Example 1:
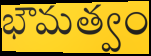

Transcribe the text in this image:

భౌమత్వం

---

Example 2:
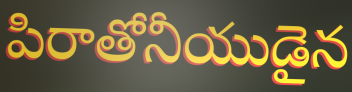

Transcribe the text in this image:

పిరాతోనీయుడైన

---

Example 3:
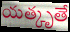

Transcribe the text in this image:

యత్కృతే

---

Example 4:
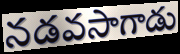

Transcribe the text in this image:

నడవసాగాడు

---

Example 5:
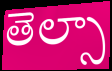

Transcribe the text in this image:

తెల్సా